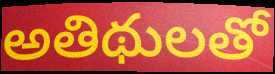
అతిథులతో